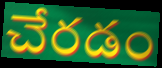
చేరడం